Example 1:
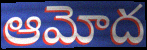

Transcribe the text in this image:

ఆమోద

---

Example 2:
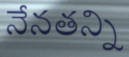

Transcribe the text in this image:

నేనతన్ని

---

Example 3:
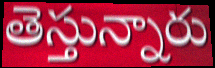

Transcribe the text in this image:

తెస్తున్నారు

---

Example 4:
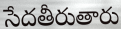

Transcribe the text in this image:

సేదతీరుతారు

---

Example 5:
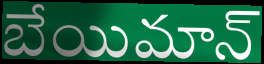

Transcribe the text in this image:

బేయిమాన్